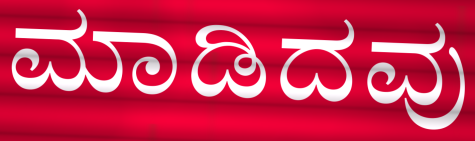
ಮಾಡಿದವು